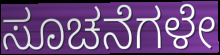
ಸೂಚನೆಗಳೇ